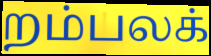
றம்பலக்